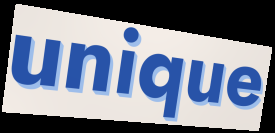
unique